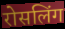
रोसलिंग